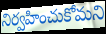
నిర్వహించుకోమని